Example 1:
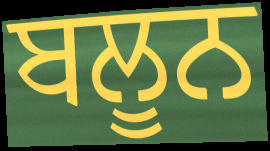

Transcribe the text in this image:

ਬਲੂਨ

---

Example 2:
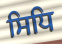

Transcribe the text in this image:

ਸਿਧਿ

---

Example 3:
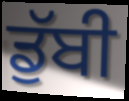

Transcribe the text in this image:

ਡੁੱਬੀ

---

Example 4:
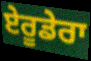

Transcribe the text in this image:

ਏਰੂਡੇਰਾ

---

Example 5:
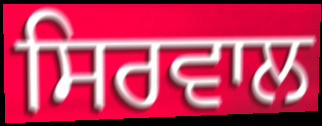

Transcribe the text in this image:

ਸਿਰਵਾਲ